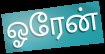
ஓரேன்